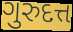
ગુરુદત્ત